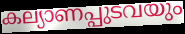
കല്യാണപ്പുടവയും